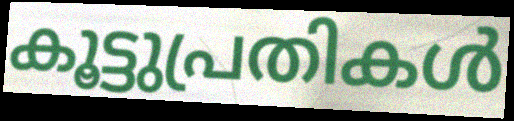
കൂട്ടുപ്രതികൾ